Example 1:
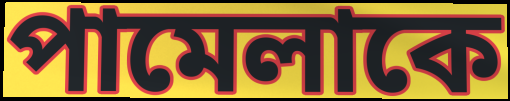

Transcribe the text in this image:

পামেলাকে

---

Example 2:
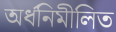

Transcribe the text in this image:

অর্ধনিমীলিত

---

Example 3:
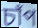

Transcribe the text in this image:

চাঁপ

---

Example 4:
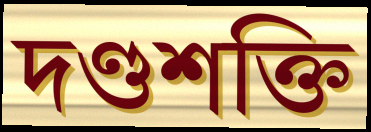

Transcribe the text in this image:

দণ্ডশক্তি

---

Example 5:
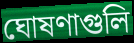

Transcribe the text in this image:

ঘোষণাগুলি